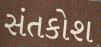
સંતકોશ